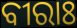
ବୀରାଃ